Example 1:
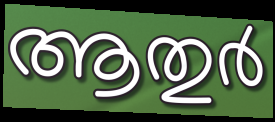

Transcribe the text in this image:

ആതുർ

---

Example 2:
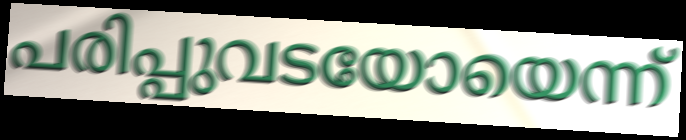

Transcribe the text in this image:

പരിപ്പുവടയോയെന്ന്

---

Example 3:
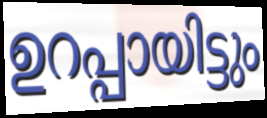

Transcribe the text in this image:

ഉറപ്പായിട്ടും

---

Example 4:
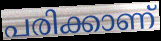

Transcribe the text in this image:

പരിക്കാണ്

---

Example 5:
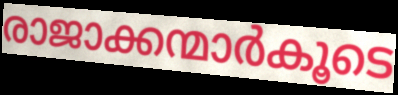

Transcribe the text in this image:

രാജാക്കന്മാർകൂടെ